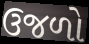
ઉજળો